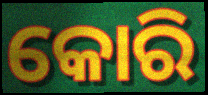
କୋରି